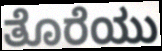
ತೊರೆಯು